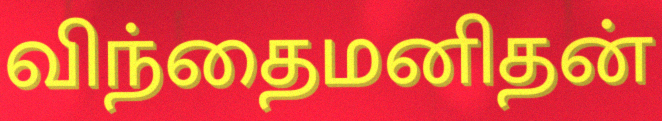
விந்தைமனிதன்